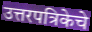
उत्तरपत्रिकेचे